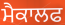
ਮੈਕਾਲਫ